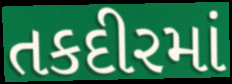
તકદીરમાં